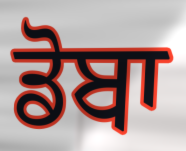
ਡੋਬਾ